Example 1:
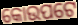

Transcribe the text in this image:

କୋଉପଟେ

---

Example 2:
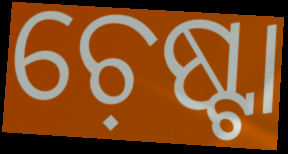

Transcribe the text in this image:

ଚ଼େଷ୍ଟା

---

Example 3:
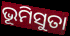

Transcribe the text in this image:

ଭୂମିସୁତା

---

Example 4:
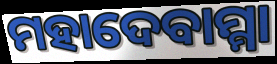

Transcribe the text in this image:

ମହାଦେବାମ୍ମା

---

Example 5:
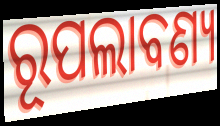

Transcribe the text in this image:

ରୂପଲାବଣ୍ୟ